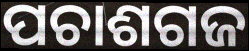
ପଚାଶଗଜ